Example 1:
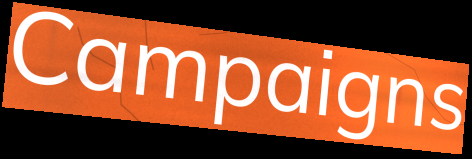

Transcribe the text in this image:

Campaigns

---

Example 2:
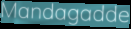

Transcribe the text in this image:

Mandagadde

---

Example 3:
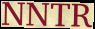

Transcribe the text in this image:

NNTR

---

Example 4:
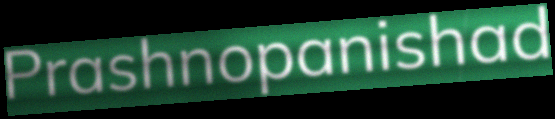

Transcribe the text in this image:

Prashnopanishad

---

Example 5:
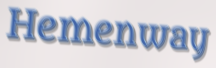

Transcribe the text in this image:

Hemenway